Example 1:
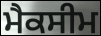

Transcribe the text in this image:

ਮੈਕਸੀਮ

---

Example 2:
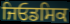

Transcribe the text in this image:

ਜਿਓਡਸਿਕ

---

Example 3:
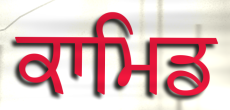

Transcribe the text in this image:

ਕਾਮਿਡ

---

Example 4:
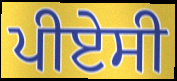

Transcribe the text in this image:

ਪੀਏਸੀ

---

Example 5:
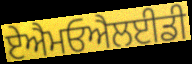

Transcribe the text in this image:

ਏਐਮਓਐਲਈਡੀ